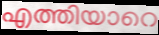
എത്തിയാറെ